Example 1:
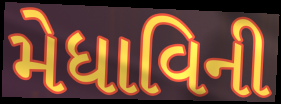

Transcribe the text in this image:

મેધાવિની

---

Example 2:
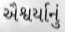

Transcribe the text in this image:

ઐશ્વર્યાનું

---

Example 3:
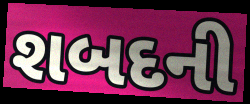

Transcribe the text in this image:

શબદની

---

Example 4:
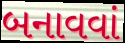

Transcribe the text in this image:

બનાવવાં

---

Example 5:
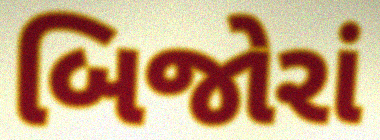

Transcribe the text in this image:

બિજોરાં